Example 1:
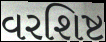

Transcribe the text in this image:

વરશિષ્ટ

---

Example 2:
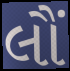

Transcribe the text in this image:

લૌં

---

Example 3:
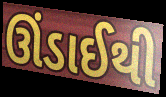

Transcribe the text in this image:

ઊંડાઈથી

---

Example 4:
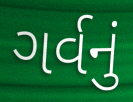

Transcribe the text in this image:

ગર્વનું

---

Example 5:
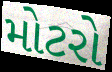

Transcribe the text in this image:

મોટરો